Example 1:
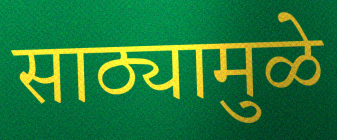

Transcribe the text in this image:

साठ्यामुळे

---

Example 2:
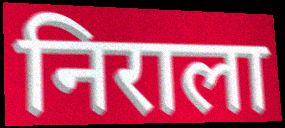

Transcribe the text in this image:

निराला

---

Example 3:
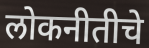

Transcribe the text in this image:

लोकनीतीचे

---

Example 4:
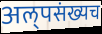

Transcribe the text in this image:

अल्पसंख्यच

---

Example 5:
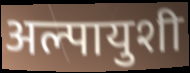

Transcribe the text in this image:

अल्पायुशी